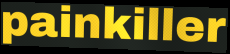
painkiller